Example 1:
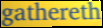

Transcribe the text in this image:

gathereth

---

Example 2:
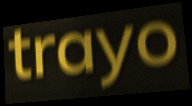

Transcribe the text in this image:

trayo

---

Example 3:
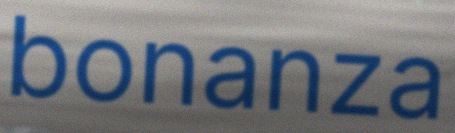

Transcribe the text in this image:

bonanza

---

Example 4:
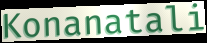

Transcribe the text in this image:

Konanatali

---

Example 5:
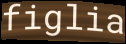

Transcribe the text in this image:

figlia